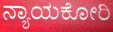
ನ್ಯಾಯಕೋರಿ